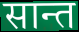
सान्त